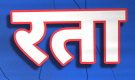
रता